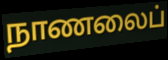
நாணலைப்